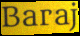
Baraj